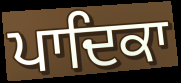
ਪਾਦਿਕਾ